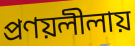
প্রণয়লীলায়